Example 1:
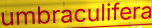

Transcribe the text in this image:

umbraculifera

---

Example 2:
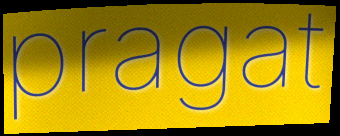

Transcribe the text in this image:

pragat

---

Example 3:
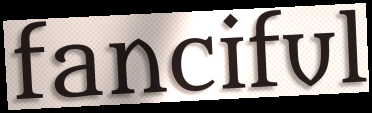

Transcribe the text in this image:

fanciful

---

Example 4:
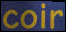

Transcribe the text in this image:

coir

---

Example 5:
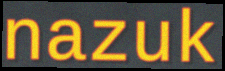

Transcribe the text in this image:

nazuk